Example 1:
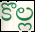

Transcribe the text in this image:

కొల్ల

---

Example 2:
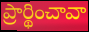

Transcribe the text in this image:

ప్రార్థించావా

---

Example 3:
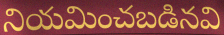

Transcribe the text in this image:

నియమించబడినవి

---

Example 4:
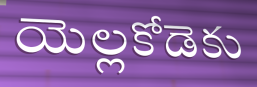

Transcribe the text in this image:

యెల్లకోడెకు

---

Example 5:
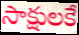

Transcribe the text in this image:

సాక్షులకే